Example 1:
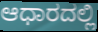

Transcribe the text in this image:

ಆಧಾರದಲ್ಲಿ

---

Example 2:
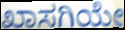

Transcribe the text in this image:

ಖಾಸಗಿಯೇ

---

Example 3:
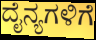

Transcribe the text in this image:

ದೈನ್ಯಗಳಿಗೆ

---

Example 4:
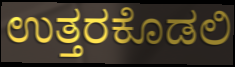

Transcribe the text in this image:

ಉತ್ತರಕೊಡಲಿ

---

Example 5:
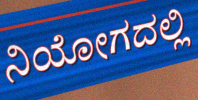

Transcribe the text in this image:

ನಿಯೋಗದಲ್ಲಿ